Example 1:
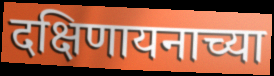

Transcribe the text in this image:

दक्षिणायनाच्या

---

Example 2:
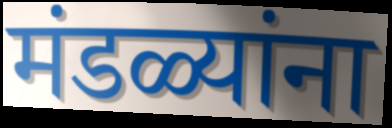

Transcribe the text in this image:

मंडळ्यांना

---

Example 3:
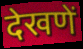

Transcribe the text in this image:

देखणें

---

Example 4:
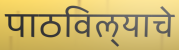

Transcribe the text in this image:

पाठविल्याचे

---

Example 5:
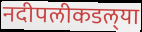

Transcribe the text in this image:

नदीपलीकडल्या